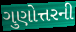
ગુણોત્તરની